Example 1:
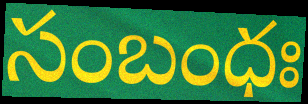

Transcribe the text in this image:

సంబంధః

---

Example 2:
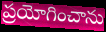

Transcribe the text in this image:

ప్రయోగించాను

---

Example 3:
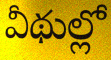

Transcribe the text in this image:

వీథుల్లో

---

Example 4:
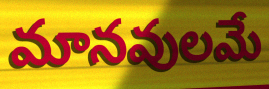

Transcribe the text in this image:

మానవులమే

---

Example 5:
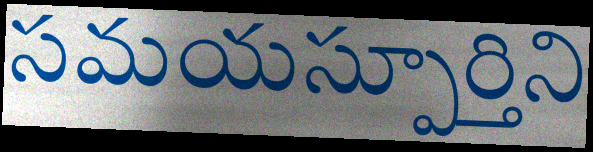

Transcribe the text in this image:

సమయస్పూర్తిని